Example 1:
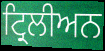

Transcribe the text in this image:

ਟ੍ਰਿਲੀਅਨ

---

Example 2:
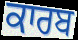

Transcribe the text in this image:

ਕਾਰਬ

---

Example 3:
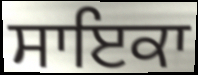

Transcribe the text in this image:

ਸਾਇਕਾ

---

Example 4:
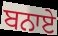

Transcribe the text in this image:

ਬਨਾਏ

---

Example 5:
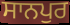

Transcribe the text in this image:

ਸਾਨਪੁਰ